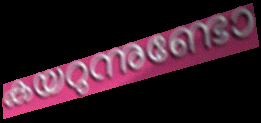
കയറുന്നുണ്ടോ